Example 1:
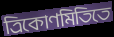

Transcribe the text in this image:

ত্রিকোণমিতিতে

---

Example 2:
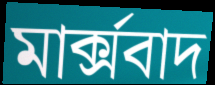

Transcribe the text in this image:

মার্ক্সবাদ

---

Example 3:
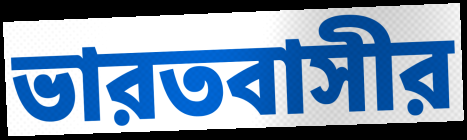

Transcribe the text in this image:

ভারতবাসীর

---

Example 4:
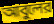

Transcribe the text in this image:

আবুলের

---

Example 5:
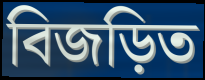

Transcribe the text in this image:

বিজড়িত